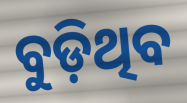
ବୁଡ଼ିଥିବ